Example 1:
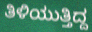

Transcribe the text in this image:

ತಿಳಿಯುತ್ತಿದ್ದ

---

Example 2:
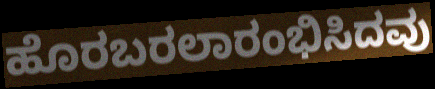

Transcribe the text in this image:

ಹೊರಬರಲಾರಂಭಿಸಿದವು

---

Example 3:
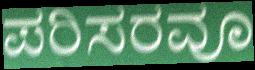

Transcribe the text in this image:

ಪರಿಸರವೂ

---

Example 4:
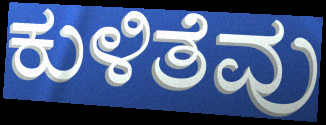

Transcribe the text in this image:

ಕುಳಿತೆವು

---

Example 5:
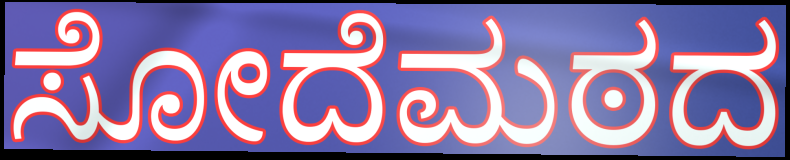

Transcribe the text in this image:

ಸೋದೆಮಠದ